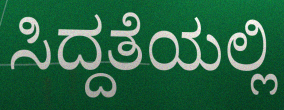
ಸಿದ್ದತೆಯಲ್ಲಿ